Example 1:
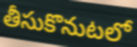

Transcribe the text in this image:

తీసుకొనుటలో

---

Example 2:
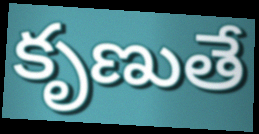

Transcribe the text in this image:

కృణుతే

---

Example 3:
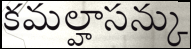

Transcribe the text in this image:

కమల్హాసన్కు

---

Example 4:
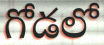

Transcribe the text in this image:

గోడలో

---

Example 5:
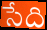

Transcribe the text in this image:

సేది